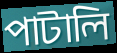
পাটালি